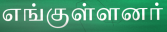
எங்குள்ளனர்